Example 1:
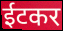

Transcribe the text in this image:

ईटकर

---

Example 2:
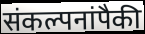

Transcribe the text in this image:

संकल्पनांपैकी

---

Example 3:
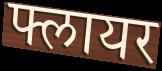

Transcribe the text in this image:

फ्लायर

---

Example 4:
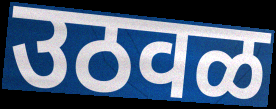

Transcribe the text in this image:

उठवळ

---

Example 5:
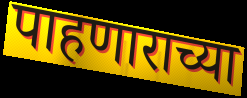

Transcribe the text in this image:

पाहणाराच्या